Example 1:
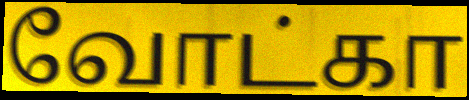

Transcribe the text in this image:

வோட்கா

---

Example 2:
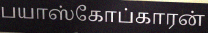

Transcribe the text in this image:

பயாஸ்கோப்காரன்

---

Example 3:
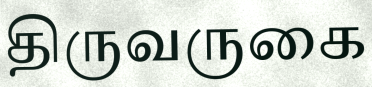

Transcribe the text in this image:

திருவருகை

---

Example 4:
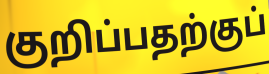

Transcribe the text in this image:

குறிப்பதற்குப்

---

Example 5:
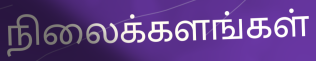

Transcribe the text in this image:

நிலைக்களங்கள்